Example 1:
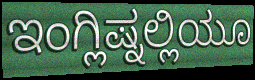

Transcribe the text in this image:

ಇಂಗ್ಲಿಷ್ನಲ್ಲಿಯೂ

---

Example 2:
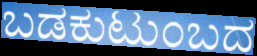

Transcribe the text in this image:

ಬಡಕುಟುಂಬದ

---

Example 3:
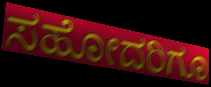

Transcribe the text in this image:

ಸಹೋದರಿಗೂ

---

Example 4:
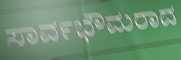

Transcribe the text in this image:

ಸಾರ್ವಭೌಮರಾದ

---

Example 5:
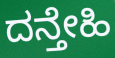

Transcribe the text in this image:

ದನ್ತೇಹಿ